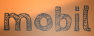
mobil